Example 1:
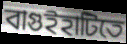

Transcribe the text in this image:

বাগুইহাটিতে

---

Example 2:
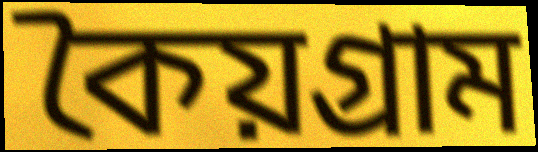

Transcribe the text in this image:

কৈয়গ্রাম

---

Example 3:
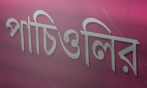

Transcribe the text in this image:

পাচিওলির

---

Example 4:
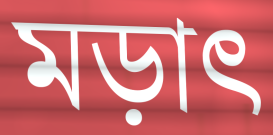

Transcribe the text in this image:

মড়াৎ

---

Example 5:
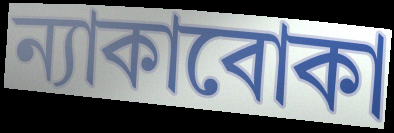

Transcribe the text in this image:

ন্যাকাবোকা